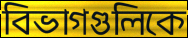
বিভাগগুলিকে